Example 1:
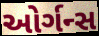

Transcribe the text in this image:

ઓર્ગન્સ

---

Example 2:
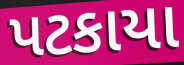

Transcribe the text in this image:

પટકાયા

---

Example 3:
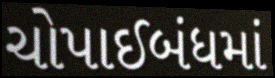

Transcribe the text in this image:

ચોપાઈબંધમાં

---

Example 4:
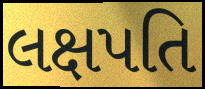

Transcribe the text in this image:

લક્ષપતિ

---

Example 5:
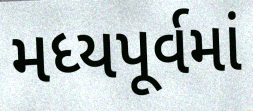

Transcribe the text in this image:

મધ્યપૂર્વમાં